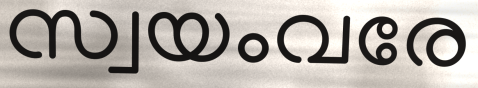
സ്വയംവരേ